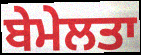
ਬੇਮੇਲਤਾ